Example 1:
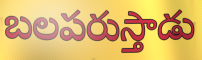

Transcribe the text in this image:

బలపరుస్తాడు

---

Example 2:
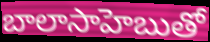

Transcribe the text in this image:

బాలాసాహెబుతో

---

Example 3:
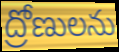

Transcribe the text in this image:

ద్రోణులను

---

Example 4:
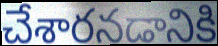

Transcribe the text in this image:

చేశారనడానికి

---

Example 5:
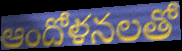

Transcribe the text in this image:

ఆందోళనలతో